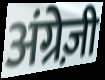
अंग्रेज़ी